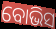
ବୋଭିସ